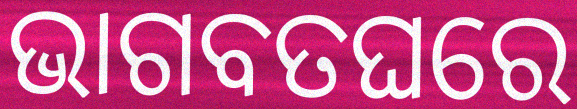
ଭାଗବତଘରେ